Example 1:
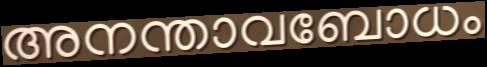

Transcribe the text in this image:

അനന്താവബോധം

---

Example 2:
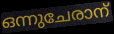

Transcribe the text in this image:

ഒന്നുചേരാന്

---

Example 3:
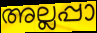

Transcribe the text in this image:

അല്ലപ്പാ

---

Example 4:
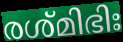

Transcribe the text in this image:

രശ്മിഭിഃ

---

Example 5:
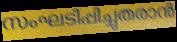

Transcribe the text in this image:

സംഘടിപ്പിച്ചുതരാൻ